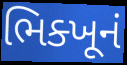
ભિક્ખૂનં